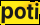
poti